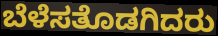
ಬೆಳೆಸತೊಡಗಿದರು